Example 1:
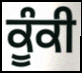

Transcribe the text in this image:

ਕੂੰਕੀ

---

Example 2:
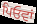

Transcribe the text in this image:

ਪਿਓਵਾਂ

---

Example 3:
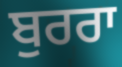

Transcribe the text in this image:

ਬੁਰਰਾ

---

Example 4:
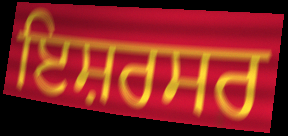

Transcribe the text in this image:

ਇਸ਼ਰਸਰ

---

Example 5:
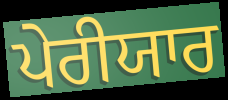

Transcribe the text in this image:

ਪੇਰੀਯਾਰ